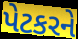
પેટકરને